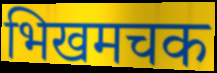
भिखमचक